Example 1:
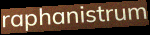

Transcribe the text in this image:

raphanistrum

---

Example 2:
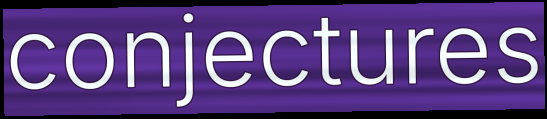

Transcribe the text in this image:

conjectures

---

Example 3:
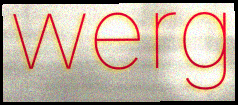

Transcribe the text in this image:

werg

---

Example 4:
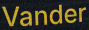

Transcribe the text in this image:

Vander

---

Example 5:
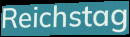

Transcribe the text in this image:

Reichstag